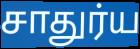
சாதுர்ய